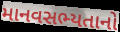
માનવસભ્યતાનો